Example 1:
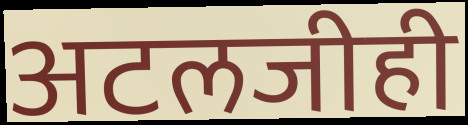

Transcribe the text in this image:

अटलजीही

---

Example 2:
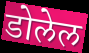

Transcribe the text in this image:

डोलेल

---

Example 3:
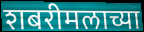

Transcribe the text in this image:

शबरीमलाच्या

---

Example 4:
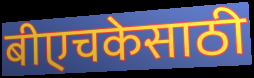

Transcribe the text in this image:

बीएचकेसाठी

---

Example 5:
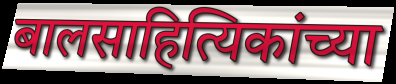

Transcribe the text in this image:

बालसाहित्यिकांच्या